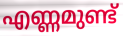
എണ്ണമുണ്ട്